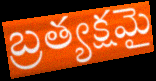
బ్రత్యక్షమై